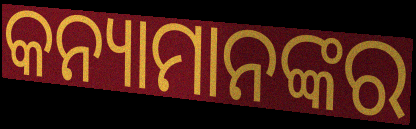
କନ୍ୟାମାନଙ୍କର